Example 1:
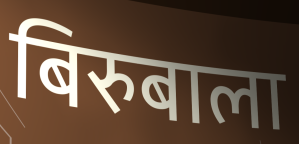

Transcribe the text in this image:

बिरुबाला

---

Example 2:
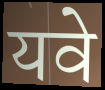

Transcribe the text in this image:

यवे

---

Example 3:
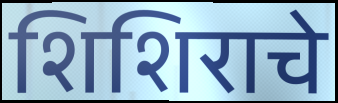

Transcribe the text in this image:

शिशिराचे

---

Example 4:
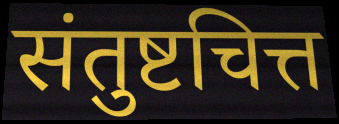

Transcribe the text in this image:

संतुष्टचित्त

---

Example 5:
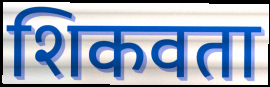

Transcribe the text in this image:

शिकवता